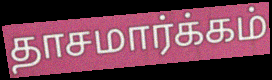
தாசமார்க்கம்